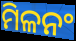
ମିଳନଂ